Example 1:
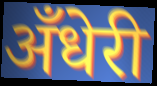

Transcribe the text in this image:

अँधेरी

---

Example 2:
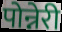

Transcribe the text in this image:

पोन्नेरी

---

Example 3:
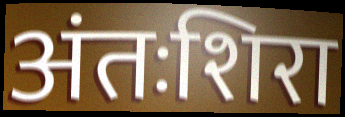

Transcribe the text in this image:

अंतःशिरा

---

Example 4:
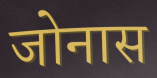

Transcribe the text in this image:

जोनास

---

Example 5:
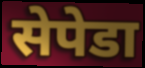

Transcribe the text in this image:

सेपेडा